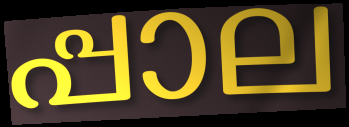
പ്പാല